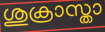
ശുക്രാസ്താ